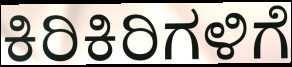
ಕಿರಿಕಿರಿಗಳಿಗೆ